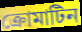
ক্রোমাটিন